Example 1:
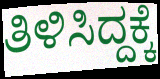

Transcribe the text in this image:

ತಿಳಿಸಿದ್ದಕ್ಕೆ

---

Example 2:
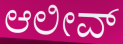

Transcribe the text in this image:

ಆಲೀವ್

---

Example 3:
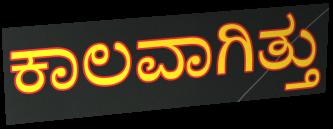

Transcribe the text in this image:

ಕಾಲವಾಗಿತ್ತು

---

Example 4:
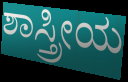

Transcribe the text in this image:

ಶಾಸ್ತ್ರೀಯ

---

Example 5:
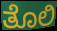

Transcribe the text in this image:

ತೊಲಿ